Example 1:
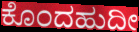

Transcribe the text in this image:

ಕೊಂದಹುದೀ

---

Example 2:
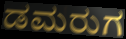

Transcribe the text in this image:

ಡಮರುಗ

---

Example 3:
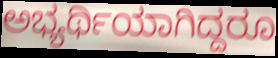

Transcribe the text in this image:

ಅಭ್ಯರ್ಥಿಯಾಗಿದ್ದರೂ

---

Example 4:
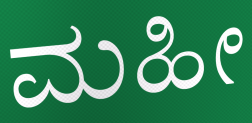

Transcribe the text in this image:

ಮಹೀ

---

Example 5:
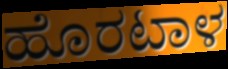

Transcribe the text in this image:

ಹೊರಟಾಳ